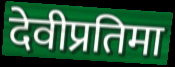
देवीप्रतिमा